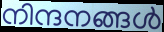
നിന്ദനങ്ങൾ